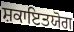
ਸ਼ਕਾਇਤਯੋਗ